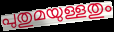
പുതുമയുള്ളതും